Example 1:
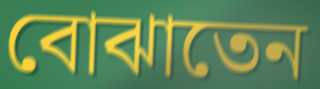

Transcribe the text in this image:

বোঝাতেন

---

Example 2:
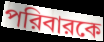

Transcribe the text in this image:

পরিবারকে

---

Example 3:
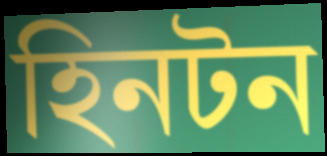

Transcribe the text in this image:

হিনটন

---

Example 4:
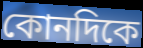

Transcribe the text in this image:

কোনদিকে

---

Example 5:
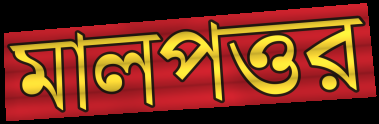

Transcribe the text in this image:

মালপত্তর